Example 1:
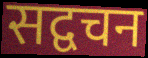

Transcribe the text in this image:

सद्वचन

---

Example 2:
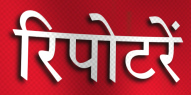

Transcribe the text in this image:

रिपोटरें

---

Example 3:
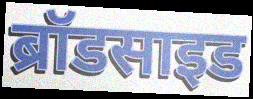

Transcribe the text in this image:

ब्रॉडसाइड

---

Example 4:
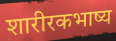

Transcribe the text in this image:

शारीरकभाष्य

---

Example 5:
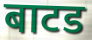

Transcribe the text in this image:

बाटड